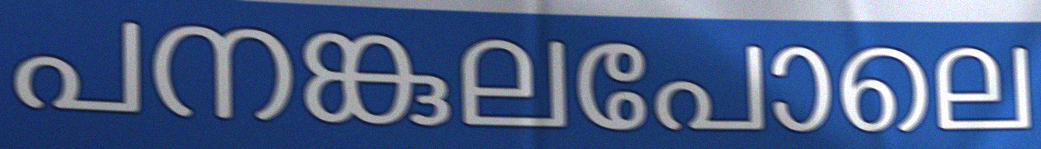
പനങ്കുലപോലെ